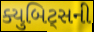
ક્યુબિટ્સની